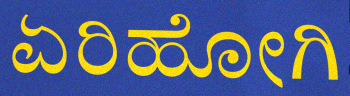
ಏರಿಹೋಗಿ